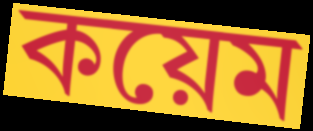
কয়েম